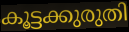
കൂട്ടക്കുരുതി